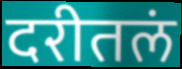
दरीतलं